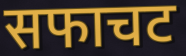
सफाचट